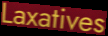
Laxatives